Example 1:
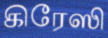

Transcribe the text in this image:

கிரேஸி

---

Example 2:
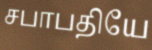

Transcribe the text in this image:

சபாபதியே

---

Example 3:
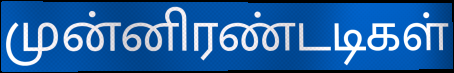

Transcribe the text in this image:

முன்னிரண்டடிகள்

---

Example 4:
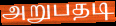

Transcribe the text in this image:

அறுபதடி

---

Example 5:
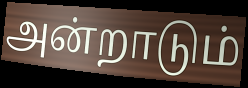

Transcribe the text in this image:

அன்றாடும்